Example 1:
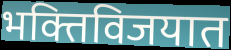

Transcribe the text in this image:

भक्तिविजयात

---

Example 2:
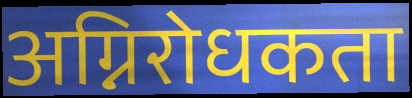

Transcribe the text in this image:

अग्निरोधकता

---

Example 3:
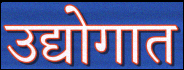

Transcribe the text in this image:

उद्योगात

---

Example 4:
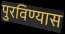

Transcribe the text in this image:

पुरविण्यास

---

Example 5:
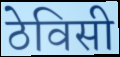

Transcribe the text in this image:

ठेविसी